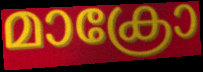
മാക്രോ